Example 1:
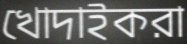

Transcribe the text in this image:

খোদাইকরা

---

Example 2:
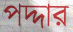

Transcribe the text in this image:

পদ্দার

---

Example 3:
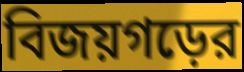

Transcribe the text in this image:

বিজয়গড়ের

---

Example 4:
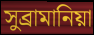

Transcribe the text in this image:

সুব্রামানিয়া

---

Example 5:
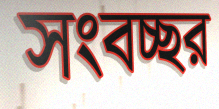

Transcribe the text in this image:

সংবচ্ছর